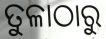
ତୁଳାଠାରୁ